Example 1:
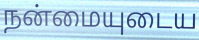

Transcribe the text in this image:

நன்மையுடைய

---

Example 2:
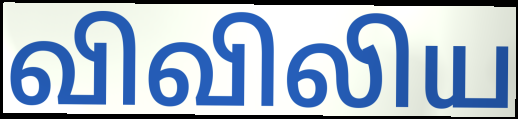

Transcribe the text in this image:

விவிலிய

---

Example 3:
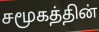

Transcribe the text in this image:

சமூகத்தின்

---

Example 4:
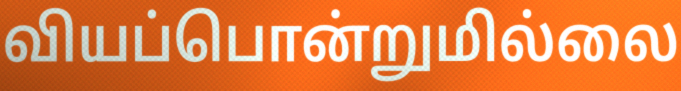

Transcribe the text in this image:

வியப்பொன்றுமில்லை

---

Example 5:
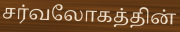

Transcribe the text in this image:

சர்வலோகத்தின்